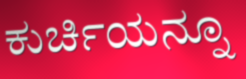
ಕುರ್ಚಿಯನ್ನೂ